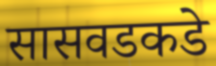
सासवडकडे